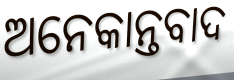
ଅନେକାନ୍ତବାଦ